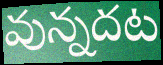
వున్నదట